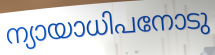
ന്യായാധിപനോടു